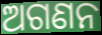
ଅଗଣନ